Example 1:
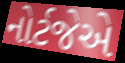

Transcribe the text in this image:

નોર્ટજેએ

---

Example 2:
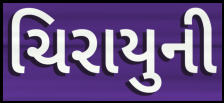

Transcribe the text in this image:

ચિરાયુની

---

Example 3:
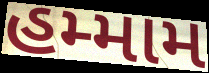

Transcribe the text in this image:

હમ્મામ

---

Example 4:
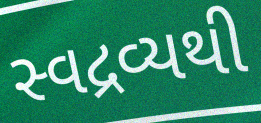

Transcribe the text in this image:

સ્વદ્રવ્યથી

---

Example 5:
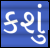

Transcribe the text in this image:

કશું